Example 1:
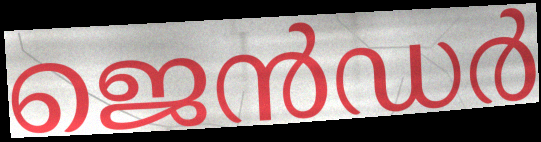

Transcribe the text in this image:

ജെൻഡർ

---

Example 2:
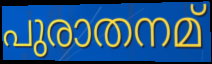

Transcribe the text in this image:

പുരാതനമ്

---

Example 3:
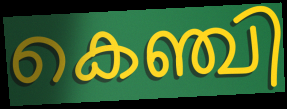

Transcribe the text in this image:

കെഞ്ചി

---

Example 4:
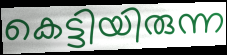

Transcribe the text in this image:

കെട്ടിയിരുന്ന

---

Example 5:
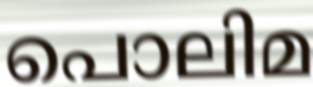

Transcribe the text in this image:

പൊലിമ